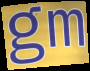
gm